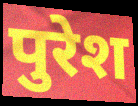
पुरेश